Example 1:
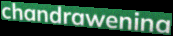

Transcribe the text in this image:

chandrawenina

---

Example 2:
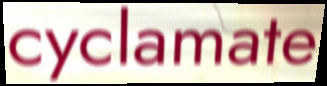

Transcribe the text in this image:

cyclamate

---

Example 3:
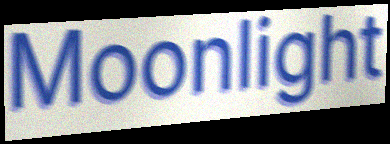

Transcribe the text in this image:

Moonlight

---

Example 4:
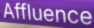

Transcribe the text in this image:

Affluence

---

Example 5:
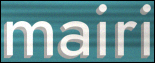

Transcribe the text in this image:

mairi